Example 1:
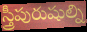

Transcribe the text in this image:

స్త్రీపురుషుల్ని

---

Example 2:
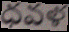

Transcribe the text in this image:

ధవళ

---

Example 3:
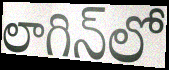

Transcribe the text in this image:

లాగిన్‌లో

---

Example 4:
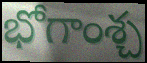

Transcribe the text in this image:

భోగాంశ్చ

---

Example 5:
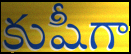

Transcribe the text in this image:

కుషీగా